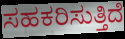
ಸಹಕರಿಸುತ್ತಿದೆ